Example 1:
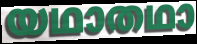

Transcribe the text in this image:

യഥാതഥാ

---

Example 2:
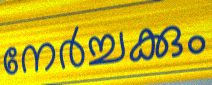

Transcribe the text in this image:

നേർച്ചക്കും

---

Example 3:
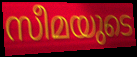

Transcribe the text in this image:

സീമയുടെ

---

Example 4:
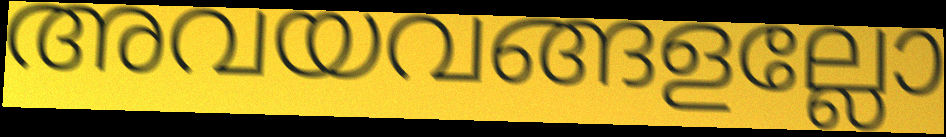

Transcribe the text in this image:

അവയവങ്ങളല്ലോ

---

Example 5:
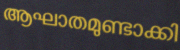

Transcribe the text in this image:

ആഘാതമുണ്ടാക്കി